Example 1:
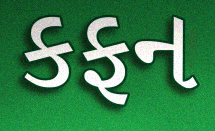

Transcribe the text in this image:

કફન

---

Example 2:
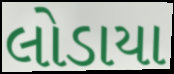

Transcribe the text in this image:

લોડાયા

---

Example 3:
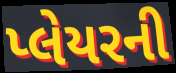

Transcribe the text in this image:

પ્લેયરની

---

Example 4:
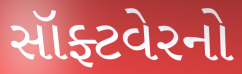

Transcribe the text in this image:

સૉફ્ટવેરનો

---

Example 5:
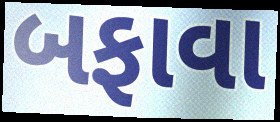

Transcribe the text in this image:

બફાવા